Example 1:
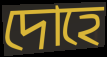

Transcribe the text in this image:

দোহে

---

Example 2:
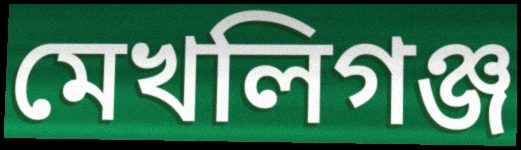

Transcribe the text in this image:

মেখলিগঞ্জ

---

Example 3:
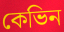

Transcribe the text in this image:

কেভিন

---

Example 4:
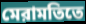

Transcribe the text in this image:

মেরামতিতে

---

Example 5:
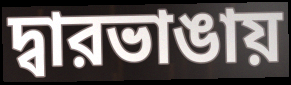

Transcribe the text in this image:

দ্বারভাঙায়